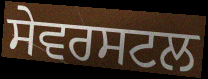
ਸੇਵਰਸਟਲ